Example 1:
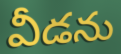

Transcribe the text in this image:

వీడను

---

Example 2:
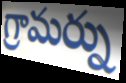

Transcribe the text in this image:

గ్రామర్ను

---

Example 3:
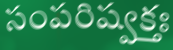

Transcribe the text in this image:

సంపరిష్వక్తః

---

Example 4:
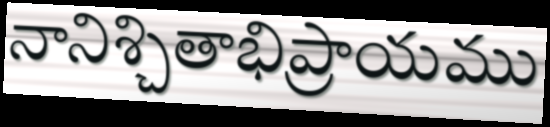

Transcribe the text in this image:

నానిశ్చితాభిప్రాయము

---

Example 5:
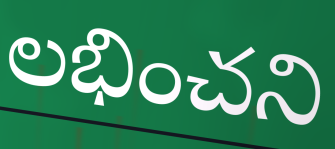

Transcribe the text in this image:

లభించని